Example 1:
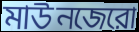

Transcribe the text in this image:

মাউনজেরো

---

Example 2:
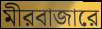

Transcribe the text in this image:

মীরবাজারে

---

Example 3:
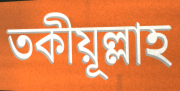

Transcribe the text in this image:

তকীয়ূল্লাহ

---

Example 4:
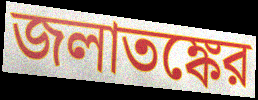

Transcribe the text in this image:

জলাতঙ্কের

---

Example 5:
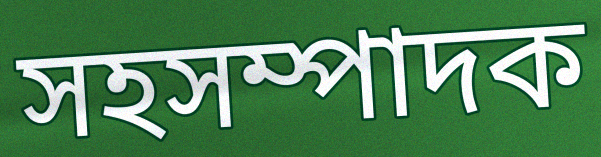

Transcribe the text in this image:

সহসম্পাদক